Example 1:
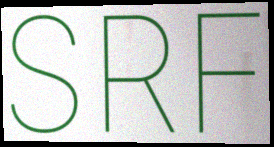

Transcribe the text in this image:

SRF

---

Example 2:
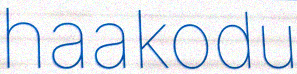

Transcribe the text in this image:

haakodu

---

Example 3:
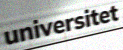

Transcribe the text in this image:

universitet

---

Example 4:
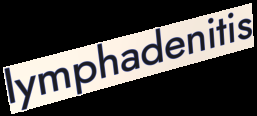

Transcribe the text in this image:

lymphadenitis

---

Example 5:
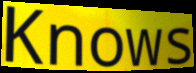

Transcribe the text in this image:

Knows